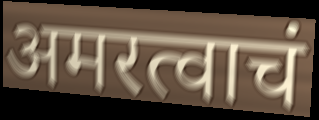
अमरत्वाचं